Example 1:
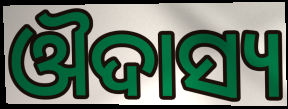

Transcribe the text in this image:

ଔଦାସ୍ୟ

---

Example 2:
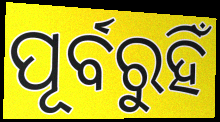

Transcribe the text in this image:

ପୂର୍ବରୁହିଁ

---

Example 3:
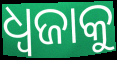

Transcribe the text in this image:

ଧ୍ୱଜାକୁ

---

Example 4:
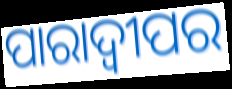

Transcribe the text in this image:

ପାରାଦ୍ବୀପର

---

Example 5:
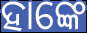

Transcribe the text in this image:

ହାଙ୍କେ